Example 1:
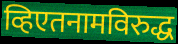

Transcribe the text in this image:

व्हिएतनामविरुद्ध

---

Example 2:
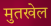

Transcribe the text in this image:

मुतखेल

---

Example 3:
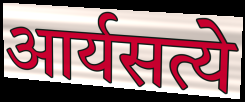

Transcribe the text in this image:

आर्यसत्ये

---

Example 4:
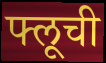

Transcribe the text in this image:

फ्लूची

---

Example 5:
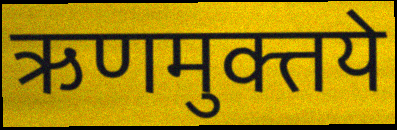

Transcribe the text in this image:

ऋणमुक्तये